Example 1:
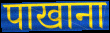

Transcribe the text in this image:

पाखाना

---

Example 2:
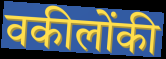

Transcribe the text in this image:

वकीलोंकी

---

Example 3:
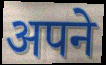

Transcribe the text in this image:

अपने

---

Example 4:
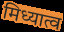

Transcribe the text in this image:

मिध्यात्व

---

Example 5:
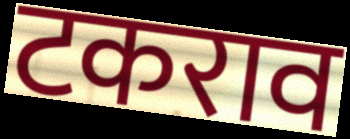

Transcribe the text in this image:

टकराव